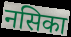
नसिका